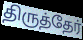
திருத்தேர்